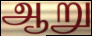
ஆறு